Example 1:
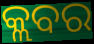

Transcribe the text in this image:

କ୍ଲବର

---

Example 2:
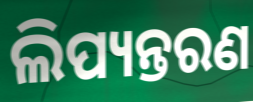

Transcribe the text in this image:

ଲିପ୍ୟନ୍ତରଣ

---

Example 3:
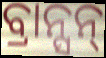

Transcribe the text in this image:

ବ୍ରାନ୍ସନ୍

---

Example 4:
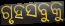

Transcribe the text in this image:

ଗୃହସବୁକୁ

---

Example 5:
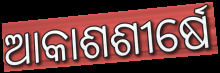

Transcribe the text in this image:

ଆକାଶଶୀର୍ଷେ